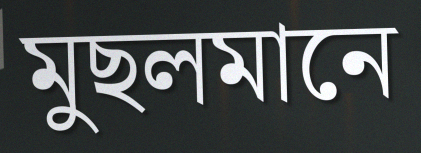
মুছলমানে